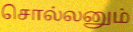
சொல்லனும்